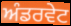
ਅੰਡਰਵੇਟ